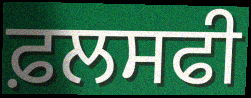
ਫ਼ਲਸਫੀ